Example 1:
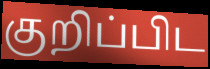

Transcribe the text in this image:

குறிப்பிட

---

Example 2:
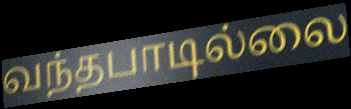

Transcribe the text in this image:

வந்தபாடில்லை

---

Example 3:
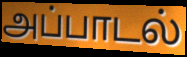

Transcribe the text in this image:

அப்பாடல்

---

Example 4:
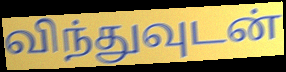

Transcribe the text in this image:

விந்துவுடன்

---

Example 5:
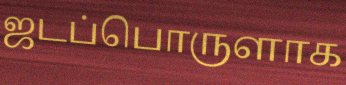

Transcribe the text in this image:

ஜடப்பொருளாக